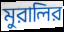
মুরালির